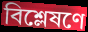
বিশ্লেষণে